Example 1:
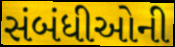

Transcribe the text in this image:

સંબંધીઓની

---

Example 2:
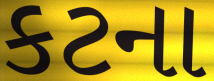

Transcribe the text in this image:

કટના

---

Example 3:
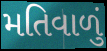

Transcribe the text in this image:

મતિવાળું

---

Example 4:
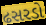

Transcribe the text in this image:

ઢસરડો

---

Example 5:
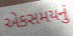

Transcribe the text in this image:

એકસમયનું